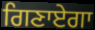
ਗਿਣਾਏਗਾ